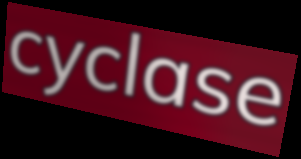
cyclase